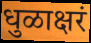
धुळाक्षरं